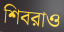
শিবরাও